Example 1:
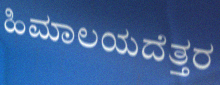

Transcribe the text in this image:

ಹಿಮಾಲಯದೆತ್ತರ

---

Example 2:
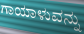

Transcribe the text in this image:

ಗಾಯಾಳುವನ್ನು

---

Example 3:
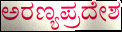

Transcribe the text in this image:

ಅರಣ್ಯಪ್ರದೇಶ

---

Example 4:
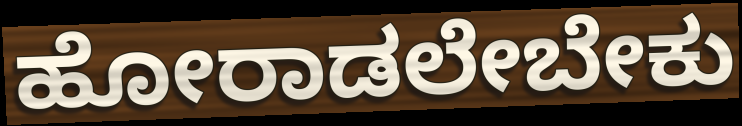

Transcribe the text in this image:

ಹೋರಾಡಲೇಬೇಕು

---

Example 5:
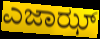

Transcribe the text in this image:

ಎಜಾಝ್